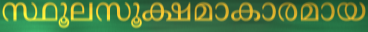
സ്ഥൂലസൂക്ഷമാകാരമായ